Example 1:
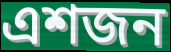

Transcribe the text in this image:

এশজন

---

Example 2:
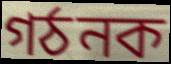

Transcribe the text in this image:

গঠনক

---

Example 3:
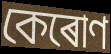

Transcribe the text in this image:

কেৰোণ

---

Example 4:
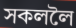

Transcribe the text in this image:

সকললৈ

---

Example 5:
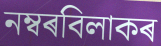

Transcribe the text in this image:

নম্বৰবিলাকৰ